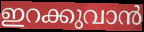
ഇറക്കുവാൻ